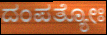
ದಂಪತ್ಯೋಃ